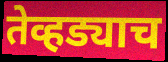
तेव्हड्याच